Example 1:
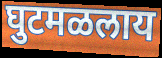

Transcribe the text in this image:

घुटमळलाय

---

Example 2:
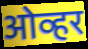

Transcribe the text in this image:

ओव्हर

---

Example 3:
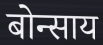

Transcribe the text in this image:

बोन्साय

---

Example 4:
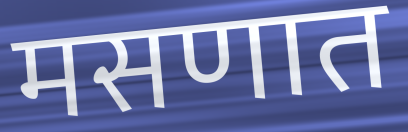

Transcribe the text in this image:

मसणात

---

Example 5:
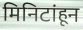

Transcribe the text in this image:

मिनिटांहून